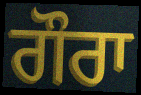
ਗੌਰਾ